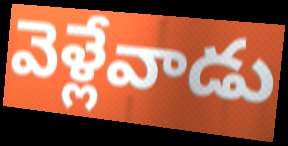
వెళ్లేవాడు